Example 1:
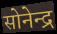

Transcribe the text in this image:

सोनेन्द्र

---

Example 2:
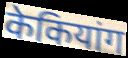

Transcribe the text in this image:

केकियांग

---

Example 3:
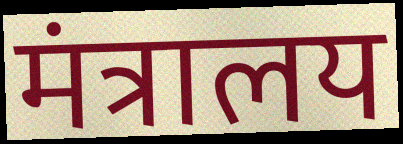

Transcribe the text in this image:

मंत्रालय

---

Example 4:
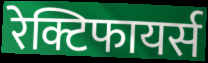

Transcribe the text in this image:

रेक्टिफायर्स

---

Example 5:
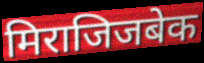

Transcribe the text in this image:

मिराजिजबेक